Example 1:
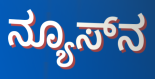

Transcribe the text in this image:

ನ್ಯೂಸ್‌ನ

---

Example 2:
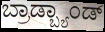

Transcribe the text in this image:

ಬ್ರಾಡ್ಬ್ಯಾಂಡ್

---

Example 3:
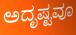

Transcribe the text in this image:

ಅದೃಷ್ಟವೂ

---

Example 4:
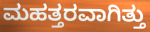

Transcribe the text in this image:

ಮಹತ್ತರವಾಗಿತ್ತು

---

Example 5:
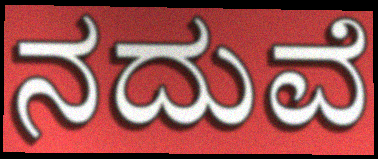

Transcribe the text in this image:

ನದುವೆ